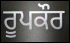
ਰੂਪਕੌਰ